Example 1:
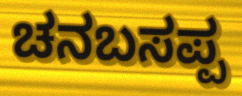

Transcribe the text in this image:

ಚನಬಸಪ್ಪ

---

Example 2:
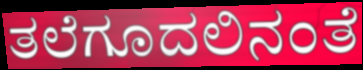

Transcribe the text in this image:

ತಲೆಗೂದಲಿನಂತೆ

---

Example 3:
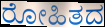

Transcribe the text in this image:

ರೋಹಿತದ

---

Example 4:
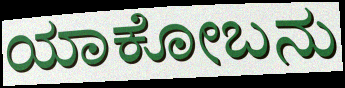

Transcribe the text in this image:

ಯಾಕೋಬನು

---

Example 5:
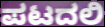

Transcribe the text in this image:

ಪಟದಲಿ